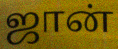
ஜான்